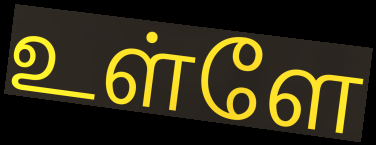
உள்ளே